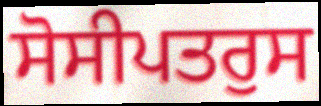
ਸੋਸੀਪਤਰੁਸ